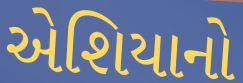
એશિયાનો